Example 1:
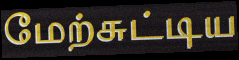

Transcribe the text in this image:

மேற்சுட்டிய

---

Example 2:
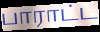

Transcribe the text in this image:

பாராட்ட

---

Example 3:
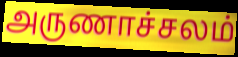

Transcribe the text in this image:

அருணாச்சலம்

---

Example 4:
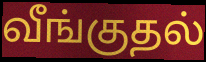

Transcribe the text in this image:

வீங்குதல்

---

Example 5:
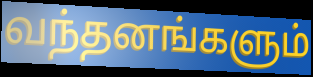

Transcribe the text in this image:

வந்தனங்களும்